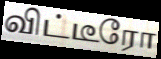
விட்டீரோ